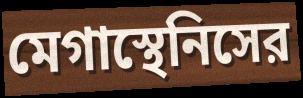
মেগাস্থেনিসের